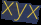
xyx